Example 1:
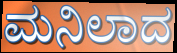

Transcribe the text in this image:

ಮನಿಲಾದ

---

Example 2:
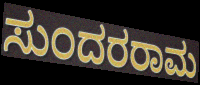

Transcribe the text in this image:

ಸುಂದರರಾಮ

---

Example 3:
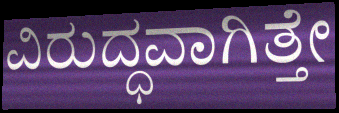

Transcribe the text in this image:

ವಿರುದ್ಧವಾಗಿತ್ತೇ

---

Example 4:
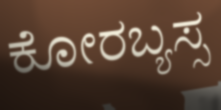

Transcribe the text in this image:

ಕೋರಬ್ಯಸ್ಸ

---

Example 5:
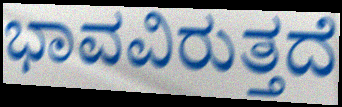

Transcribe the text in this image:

ಭಾವವಿರುತ್ತದೆ